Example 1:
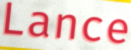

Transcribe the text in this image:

Lance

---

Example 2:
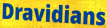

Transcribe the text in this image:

Dravidians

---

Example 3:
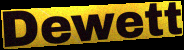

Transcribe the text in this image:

Dewett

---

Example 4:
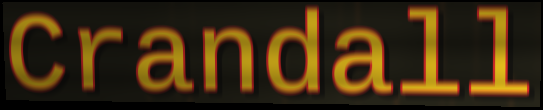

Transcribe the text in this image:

Crandall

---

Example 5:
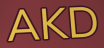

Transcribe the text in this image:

AKD